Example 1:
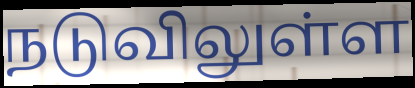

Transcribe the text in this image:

நடுவிலுள்ள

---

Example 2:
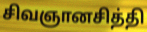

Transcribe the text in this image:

சிவஞானசித்தி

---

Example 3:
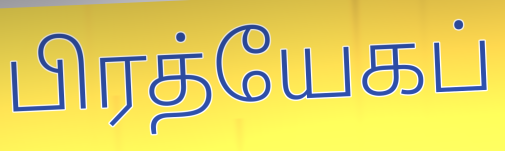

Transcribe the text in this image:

பிரத்யேகப்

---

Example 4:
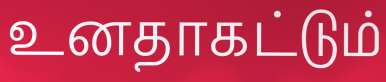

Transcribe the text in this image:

உனதாகட்டும்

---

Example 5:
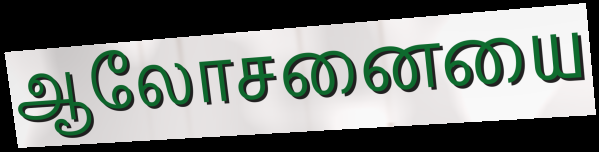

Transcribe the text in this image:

ஆலோசனையை